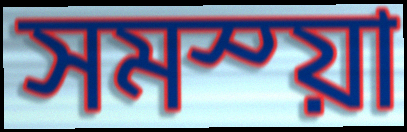
সমস্য়া